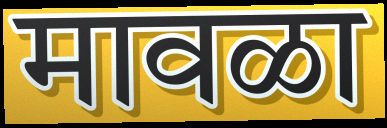
मावळा